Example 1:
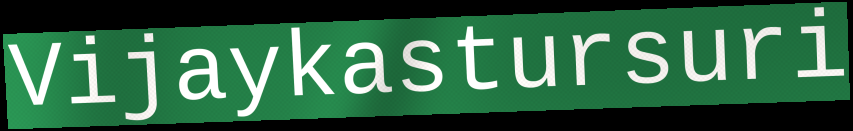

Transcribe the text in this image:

Vijaykastursuri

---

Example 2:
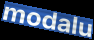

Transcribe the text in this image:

modalu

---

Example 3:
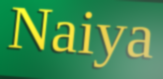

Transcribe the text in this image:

Naiya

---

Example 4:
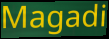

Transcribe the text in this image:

Magadi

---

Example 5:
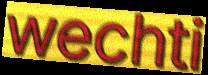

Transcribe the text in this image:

wechti